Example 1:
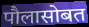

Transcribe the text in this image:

पौलासोबत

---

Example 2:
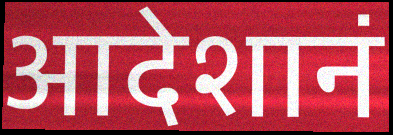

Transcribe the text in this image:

आदेशानं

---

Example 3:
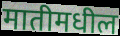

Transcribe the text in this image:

मातीमधील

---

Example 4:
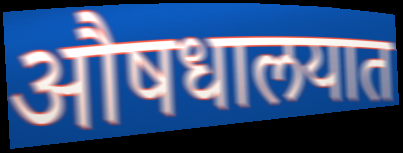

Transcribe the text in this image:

औषधालयात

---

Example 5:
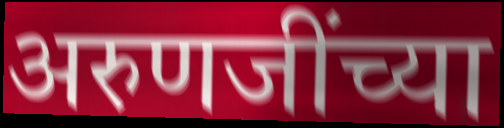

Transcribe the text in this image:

अरुणजींच्या